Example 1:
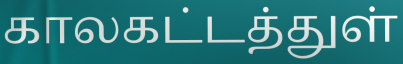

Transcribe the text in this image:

காலகட்டத்துள்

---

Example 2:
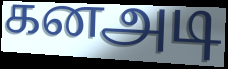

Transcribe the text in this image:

கனஅடி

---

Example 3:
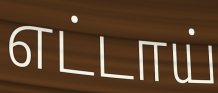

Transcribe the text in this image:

எட்டாய்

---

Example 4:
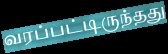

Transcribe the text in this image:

வரப்பட்டிருந்தது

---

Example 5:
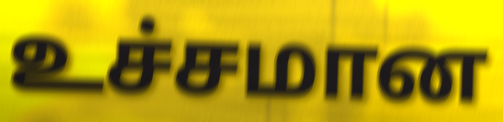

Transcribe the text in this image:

உச்சமான